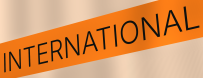
INTERNATIONAL